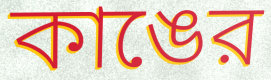
কাঙের